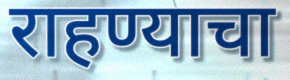
राहण्याचा